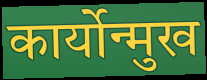
कार्योन्मुख